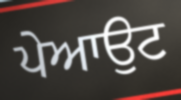
ਪੇਆਉਟ